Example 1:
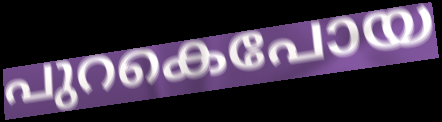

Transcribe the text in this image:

പുറകെപോയ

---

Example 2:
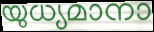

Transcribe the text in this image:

യുധ്യമാനാ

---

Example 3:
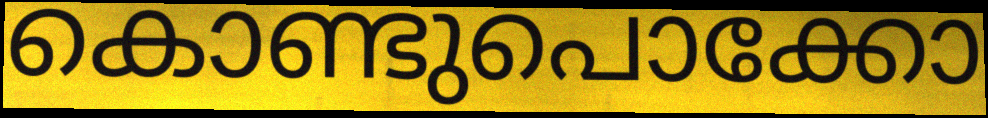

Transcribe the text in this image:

കൊണ്ടുപൊക്കോ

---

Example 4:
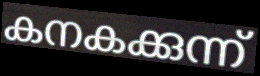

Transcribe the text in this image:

കനകക്കുന്ന്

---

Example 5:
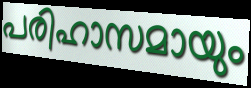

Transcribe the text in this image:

പരിഹാസമായും